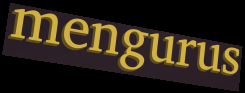
mengurus